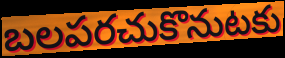
బలపరచుకొనుటకు